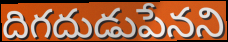
దిగదుడుపేనని